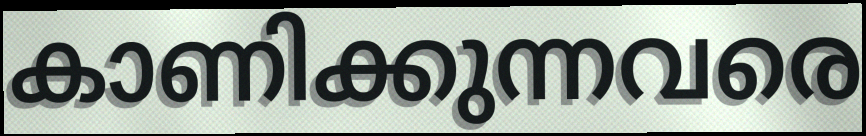
കാണിക്കുന്നവരെ